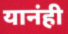
यानंही